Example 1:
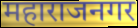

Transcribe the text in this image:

महाराजनगर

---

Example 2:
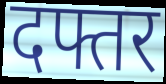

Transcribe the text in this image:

दफ्तर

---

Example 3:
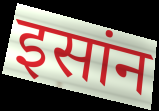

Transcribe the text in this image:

इसांन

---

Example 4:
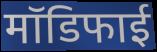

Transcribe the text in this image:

मॉडिफाई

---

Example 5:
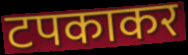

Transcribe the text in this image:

टपकाकर